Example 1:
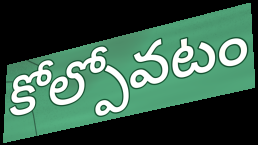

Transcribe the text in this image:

కోల్పోవటం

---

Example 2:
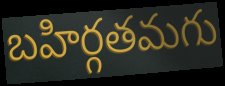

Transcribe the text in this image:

బహిర్గతమగు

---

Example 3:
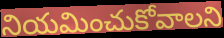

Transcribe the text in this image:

నియమించుకోవాలని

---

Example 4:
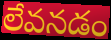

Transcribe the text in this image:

లేవనడం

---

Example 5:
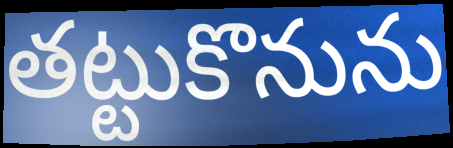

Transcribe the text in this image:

తట్టుకొనును